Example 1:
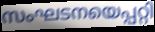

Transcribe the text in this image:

സംഘടനയെപ്പറ്റി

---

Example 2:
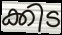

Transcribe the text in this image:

ക്കിട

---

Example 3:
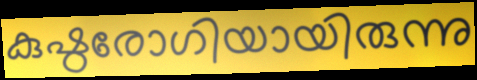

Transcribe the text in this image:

കുഷ്ഠരോഗിയായിരുന്നു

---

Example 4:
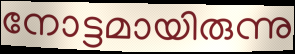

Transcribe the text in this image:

നോട്ടമായിരുന്നു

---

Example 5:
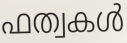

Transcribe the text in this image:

ഫത്വകൾ